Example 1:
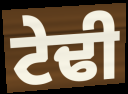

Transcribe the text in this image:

ਟੇਢੀ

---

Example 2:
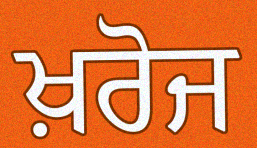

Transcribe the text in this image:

ਖ਼ਰੋਜ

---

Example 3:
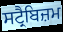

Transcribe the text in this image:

ਸਟ੍ਰੈਬਿਜ਼ਮ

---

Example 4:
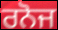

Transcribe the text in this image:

ਰਨੋਜ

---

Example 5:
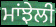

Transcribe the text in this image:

ਮਾਂਝੇਲੀ